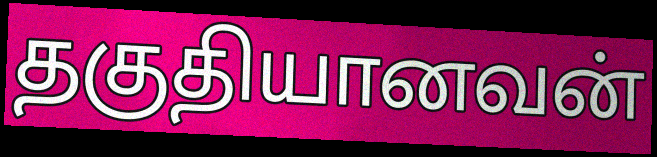
தகுதியானவன்